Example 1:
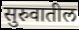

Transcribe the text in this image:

सुरुवातील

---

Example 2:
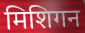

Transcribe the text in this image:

मिशिगन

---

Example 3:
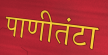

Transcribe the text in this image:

पाणीतंटा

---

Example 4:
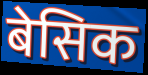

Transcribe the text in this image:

बेसिक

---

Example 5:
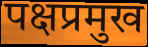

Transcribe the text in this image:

पक्षप्रमुख